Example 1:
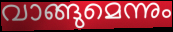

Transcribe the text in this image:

വാങ്ങുമെന്നും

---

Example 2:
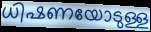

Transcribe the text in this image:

ധിഷണയോടുള്ള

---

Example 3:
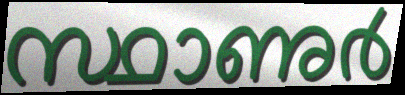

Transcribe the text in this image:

സ്ഥാണുർ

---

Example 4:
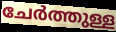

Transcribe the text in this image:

ചേർത്തുള്ള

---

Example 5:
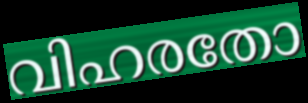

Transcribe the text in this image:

വിഹരതോ